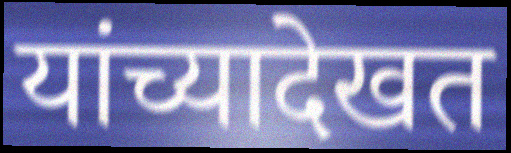
यांच्यादेखत